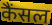
कैंसल